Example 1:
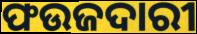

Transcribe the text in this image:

ଫଉଜଦାରୀ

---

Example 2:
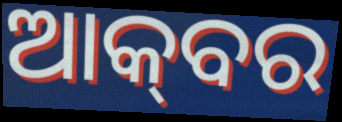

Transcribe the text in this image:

ଆକ୍‌ବର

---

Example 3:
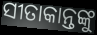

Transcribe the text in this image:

ସୀତାକାନ୍ତଙ୍କୁ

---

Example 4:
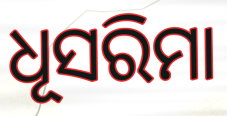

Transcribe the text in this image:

ଧୂସରିମା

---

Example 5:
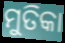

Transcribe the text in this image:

ମୁତିକା